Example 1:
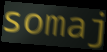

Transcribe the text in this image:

somaj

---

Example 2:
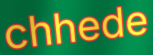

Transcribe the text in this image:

chhede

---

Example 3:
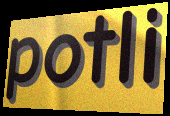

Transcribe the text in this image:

potli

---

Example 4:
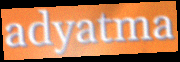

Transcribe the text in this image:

adyatma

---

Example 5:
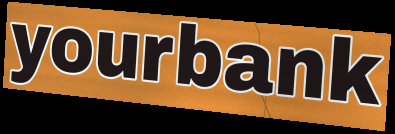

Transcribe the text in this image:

yourbank